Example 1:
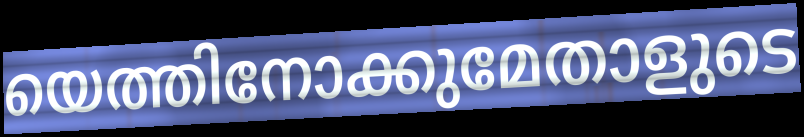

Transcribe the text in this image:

യെത്തിനോക്കുമേതാളുടെ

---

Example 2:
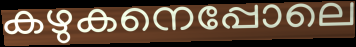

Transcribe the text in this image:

കഴുകനെപ്പോലെ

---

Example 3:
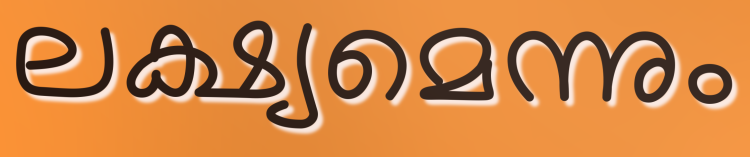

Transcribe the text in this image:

ലക്ഷ്യമെന്നും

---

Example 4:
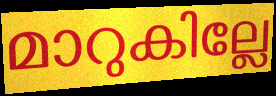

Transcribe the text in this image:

മാറുകില്ലേ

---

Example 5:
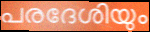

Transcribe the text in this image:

പരദേശിയും